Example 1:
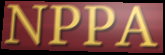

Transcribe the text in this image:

NPPA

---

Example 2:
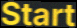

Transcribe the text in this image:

Start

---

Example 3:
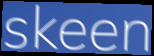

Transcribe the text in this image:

skeen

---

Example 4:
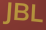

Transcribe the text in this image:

JBL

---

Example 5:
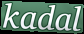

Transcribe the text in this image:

kadal